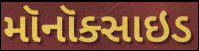
મૉનૉક્સાઇડ